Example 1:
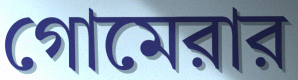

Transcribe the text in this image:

গোমেরার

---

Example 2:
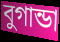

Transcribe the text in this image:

বুগান্ডা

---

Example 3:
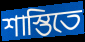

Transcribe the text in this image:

শাস্তিতে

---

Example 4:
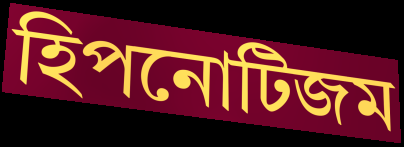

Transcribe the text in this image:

হিপনোটিজম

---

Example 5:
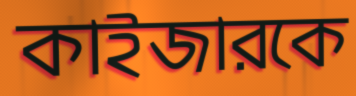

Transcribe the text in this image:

কাইজারকে